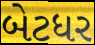
બેટધર